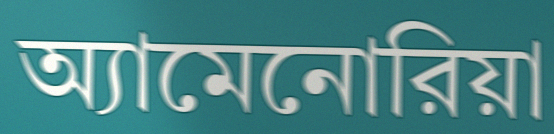
অ্যামেনোরিয়া